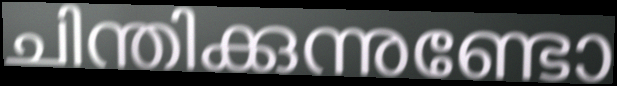
ചിന്തിക്കുന്നുണ്ടോ